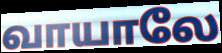
வாயாலே